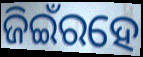
ଜିଇଁରହେ